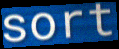
sort